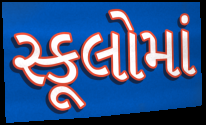
સ્કૂલોમાં